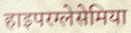
हाइपरग्लेसेमिया